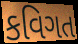
કવિગત